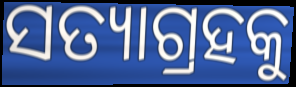
ସତ୍ୟାଗ୍ରହକୁ